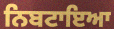
ਨਿਬਟਾਇਆ